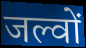
जल्वों